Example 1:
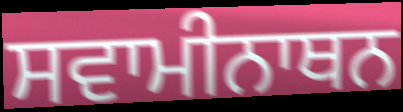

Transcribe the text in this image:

ਸਵਾਮੀਨਾਥਨ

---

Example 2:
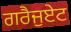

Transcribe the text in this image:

ਗਰੈਜੁਏਟ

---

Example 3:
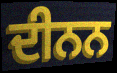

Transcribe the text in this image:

ਦੀਨਨ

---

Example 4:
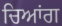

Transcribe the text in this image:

ਚਿਆਂਗ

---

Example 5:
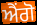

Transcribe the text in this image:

ਐਂਗੋ